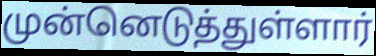
முன்னெடுத்துள்ளார்